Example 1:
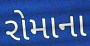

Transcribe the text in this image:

રોમાના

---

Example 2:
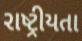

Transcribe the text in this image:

રાષ્ટ્રીયતા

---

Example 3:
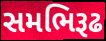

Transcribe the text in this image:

સમભિરૂઢ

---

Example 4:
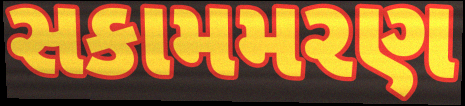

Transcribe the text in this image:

સકામમરણ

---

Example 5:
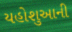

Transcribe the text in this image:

યહોશુઆની